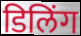
डिलिंग